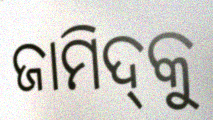
ଜାମିଦ୍‌କୁ